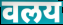
वलय